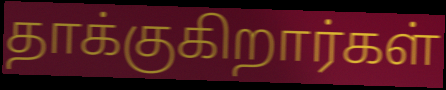
தாக்குகிறார்கள்